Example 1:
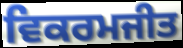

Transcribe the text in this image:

ਵਿਕਰਮਜੀਤ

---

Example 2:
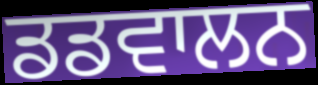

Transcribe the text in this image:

ਡਡਵਾਲਨ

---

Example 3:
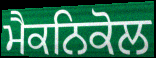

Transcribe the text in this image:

ਮੈਕਨਿਕੋਲ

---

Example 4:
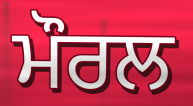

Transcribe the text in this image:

ਮੌਰਲ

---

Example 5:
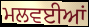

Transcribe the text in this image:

ਮਲਵਈਆਂ